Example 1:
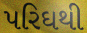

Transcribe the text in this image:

પરિઘથી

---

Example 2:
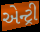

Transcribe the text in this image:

એન્ટ્રી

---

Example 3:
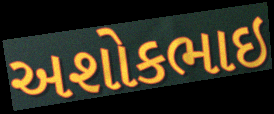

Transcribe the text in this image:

અશોકભાઇ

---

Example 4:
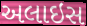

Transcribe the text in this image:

અલાઇસ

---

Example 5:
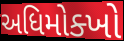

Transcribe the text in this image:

અધિમોક્ખો